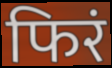
फिरं